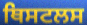
ਥਿਸਟਲਸ